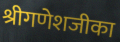
श्रीगणेशजीका